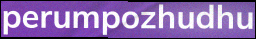
perumpozhudhu